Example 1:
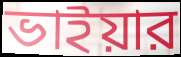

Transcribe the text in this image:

ভাইয়ার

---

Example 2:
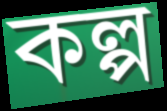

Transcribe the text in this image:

কল্প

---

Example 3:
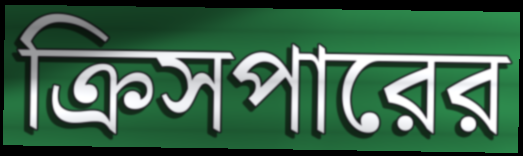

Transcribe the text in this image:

ক্রিসপারের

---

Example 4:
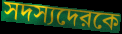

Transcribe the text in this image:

সদস্যদেরকে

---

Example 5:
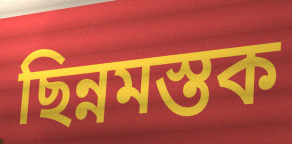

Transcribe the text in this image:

ছিন্নমস্তক